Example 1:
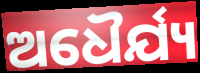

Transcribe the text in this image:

ଅଧୈର୍ଯ୍ୟ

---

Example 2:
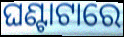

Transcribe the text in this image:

ଘଣ୍ଟାଟାରେ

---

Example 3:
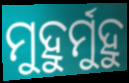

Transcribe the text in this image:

ମୁହୁର୍ମୁହୁ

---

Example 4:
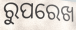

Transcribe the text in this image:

ରୁପରେଖ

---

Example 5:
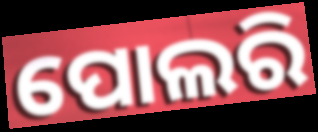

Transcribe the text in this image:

ପୋଲରି